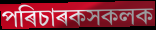
পৰিচাৰকসকলক